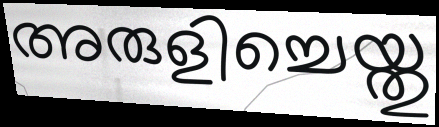
അരുളിച്ചെയ്തു